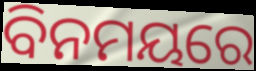
ବିନମୟରେ